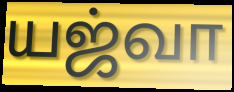
யஜ்வா